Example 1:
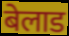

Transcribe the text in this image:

बेलाड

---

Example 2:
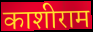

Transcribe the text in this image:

काशीराम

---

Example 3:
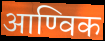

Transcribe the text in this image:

आण्विक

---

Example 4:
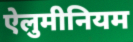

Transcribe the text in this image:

ऐलुमीनियम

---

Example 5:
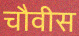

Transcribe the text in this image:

चौवीस